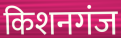
किशनगंज